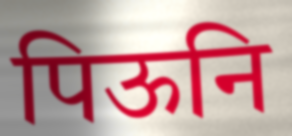
पिऊनि